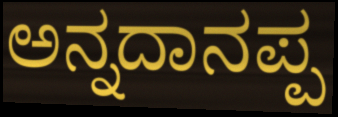
ಅನ್ನದಾನಪ್ಪ